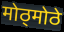
मोठ्मोठे